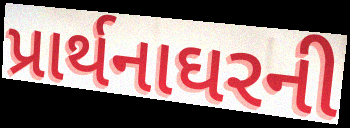
પ્રાર્થનાઘરની